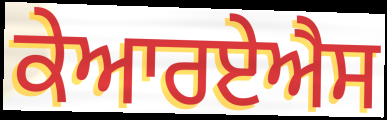
ਕੇਆਰਏਐਸ